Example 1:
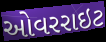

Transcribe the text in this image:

ઓવરરાઇટ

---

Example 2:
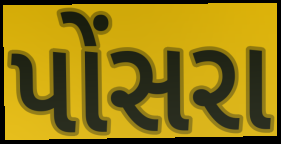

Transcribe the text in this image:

પોંસરા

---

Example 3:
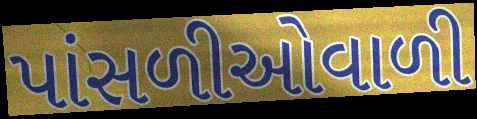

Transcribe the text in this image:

પાંસળીઓવાળી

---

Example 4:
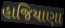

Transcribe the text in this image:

હાજિયાણા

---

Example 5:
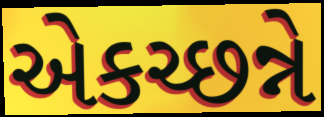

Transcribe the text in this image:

એકચ્છન્ને